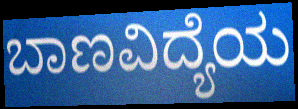
ಬಾಣವಿದ್ಯೆಯ